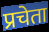
प्रचेता